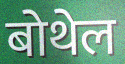
बोथेल